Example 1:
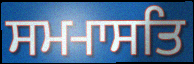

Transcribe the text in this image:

ਸਮ੍ਮਾਸਤਿ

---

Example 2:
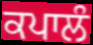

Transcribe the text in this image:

ਕਪਾਲੰ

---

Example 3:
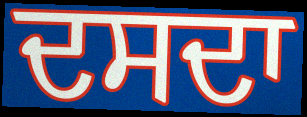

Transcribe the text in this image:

ਦਸਦਾ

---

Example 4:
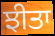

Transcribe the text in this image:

ਝੀਤਾ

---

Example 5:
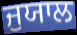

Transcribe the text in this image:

ਜੁਯਾਲ